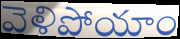
వెళిపోయాం